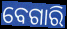
ବେଗାରି